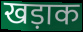
खड़ाक